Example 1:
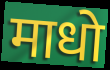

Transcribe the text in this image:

माधो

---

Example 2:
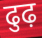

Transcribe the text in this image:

ढुढ़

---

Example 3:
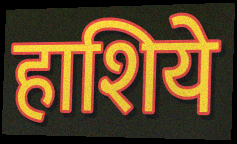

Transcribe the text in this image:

हाशिये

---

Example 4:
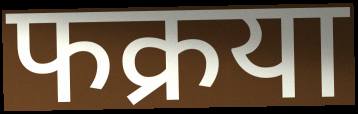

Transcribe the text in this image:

फक्रया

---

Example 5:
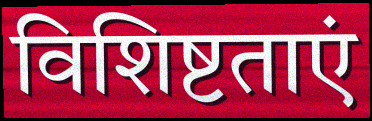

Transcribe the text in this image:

विशिष्टताएं